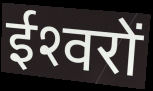
ईश्वरों